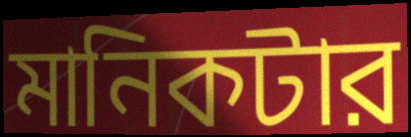
মানিকটার